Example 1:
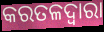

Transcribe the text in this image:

କରତଳଦ୍ୱାରା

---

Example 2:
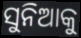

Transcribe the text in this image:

ସୁନିଆକୁ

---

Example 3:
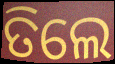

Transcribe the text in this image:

ତିଲେ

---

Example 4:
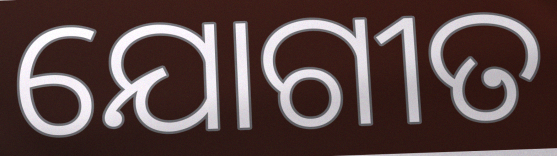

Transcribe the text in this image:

ଯୋଗୀତ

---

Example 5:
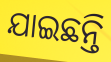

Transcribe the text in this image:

ଯାଇଛନ୍ତି